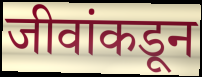
जीवांकडून